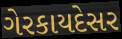
ગેરકાયદેસર